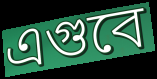
এগুবে